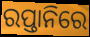
ରପ୍ତାନିରେ